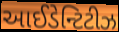
આઈડેન્ટિટીઝ